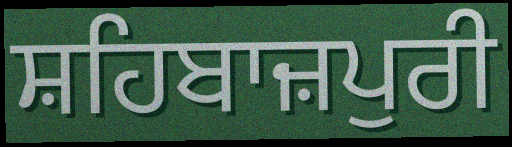
ਸ਼ਹਿਬਾਜ਼ਪੁਰੀ